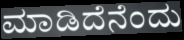
ಮಾಡಿದೆನೆಂದು